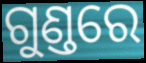
ଗୁଣ୍ଡରେ